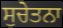
ਸੁਚੇਤਨਾ